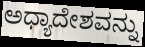
ಅಧ್ಯಾದೇಶವನ್ನು